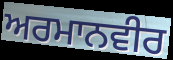
ਅਰਮਾਨਵੀਰ